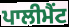
ਪਾਲੀਮੈਂਟ